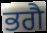
ਭਗੈ